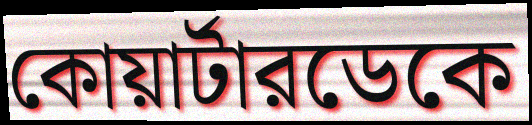
কোয়ার্টারডেকে